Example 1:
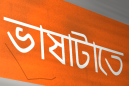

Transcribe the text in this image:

ভাষাটাতে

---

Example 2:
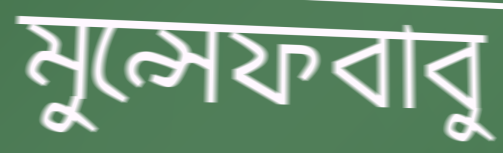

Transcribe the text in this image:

মুন্সেফবাবু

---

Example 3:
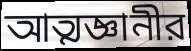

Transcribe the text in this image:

আত্মজ্ঞানীর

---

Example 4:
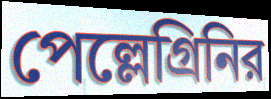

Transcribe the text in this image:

পেল্লেগ্রিনির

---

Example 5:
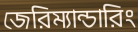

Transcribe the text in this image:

জেরিম্যান্ডারিং